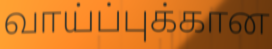
வாய்ப்புக்கான